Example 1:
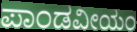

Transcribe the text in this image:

ಪಾಂಡವೀಯಂ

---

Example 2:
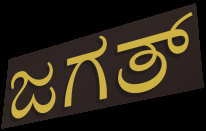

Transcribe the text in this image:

ಜಗತ್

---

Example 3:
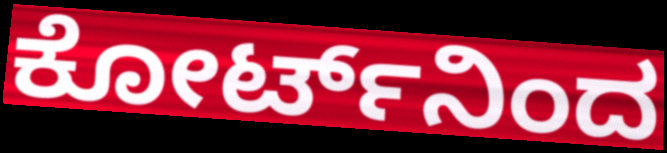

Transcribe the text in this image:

ಕೋರ್ಟ್‌ನಿಂದ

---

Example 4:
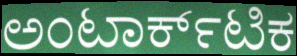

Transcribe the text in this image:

ಅಂಟಾರ್ಕ್‍ಟಿಕ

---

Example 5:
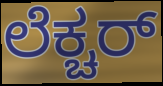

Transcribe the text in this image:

ಲೆಕ್ಚರ್